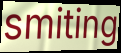
smiting